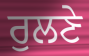
ਰੁਲਣੇ